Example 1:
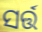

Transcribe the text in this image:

ସର୍ତ୍ତ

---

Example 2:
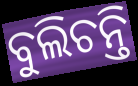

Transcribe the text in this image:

ବୁଲିଚନ୍ତି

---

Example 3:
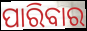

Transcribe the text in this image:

ପାରିବାର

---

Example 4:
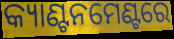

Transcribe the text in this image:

କ୍ୟାଣ୍ଟନମେଣ୍ଟରେ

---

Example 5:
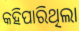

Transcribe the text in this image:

କହିପାରିଥିଲା